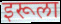
इरूला